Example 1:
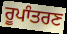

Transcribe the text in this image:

ਰੂਪਾੰਤਰਣ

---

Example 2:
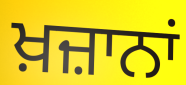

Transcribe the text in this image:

ਖ਼ਜ਼ਾਨਾਂ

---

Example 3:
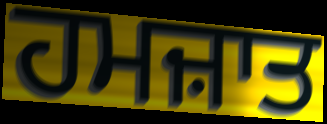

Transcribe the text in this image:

ਹਮਜ਼ਾਤ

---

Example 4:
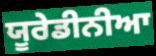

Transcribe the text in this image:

ਯੂਰੇਡੀਨੀਆ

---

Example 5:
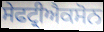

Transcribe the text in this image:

ਸੇਫਟ੍ਰੀਐਕਸੋਨ